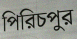
পিরিচপুর